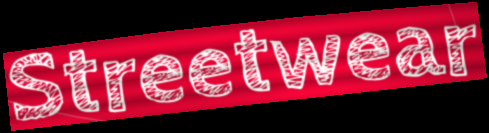
Streetwear